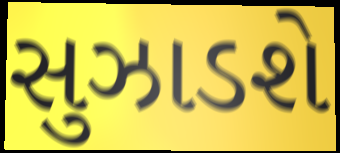
સુઝાડશે